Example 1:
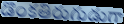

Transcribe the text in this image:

డొంకతిరుగుడుగా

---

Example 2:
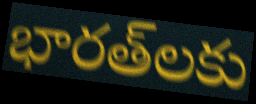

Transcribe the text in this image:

భారత్‌లకు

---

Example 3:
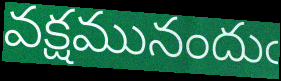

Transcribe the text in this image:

వక్షమునందుఁ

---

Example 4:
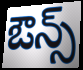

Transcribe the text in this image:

ఔన్స్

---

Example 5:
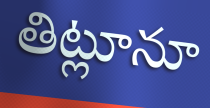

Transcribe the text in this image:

తిట్లూనూ